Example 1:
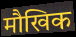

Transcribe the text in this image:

मौखिक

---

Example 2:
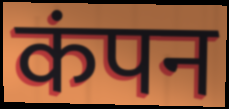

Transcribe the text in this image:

कंपन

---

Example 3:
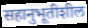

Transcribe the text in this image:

सहानुभूतीशील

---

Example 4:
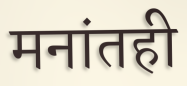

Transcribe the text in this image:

मनांतही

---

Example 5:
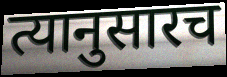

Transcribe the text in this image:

त्यानुसारच